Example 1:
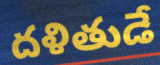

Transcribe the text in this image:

దళితుడే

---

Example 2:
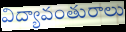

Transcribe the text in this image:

విద్యావంతురాలు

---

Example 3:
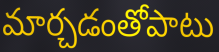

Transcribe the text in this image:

మార్చడంతోపాటు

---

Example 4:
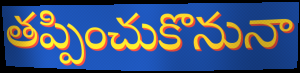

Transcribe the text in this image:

తప్పించుకొనునా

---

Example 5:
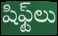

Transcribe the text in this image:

షిఫ్ట్‌లు